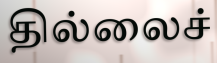
தில்லைச்